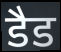
डैड